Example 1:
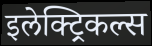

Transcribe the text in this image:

इलेक्ट्रिकल्स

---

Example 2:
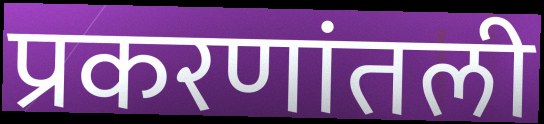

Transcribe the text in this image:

प्रकरणांतली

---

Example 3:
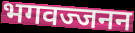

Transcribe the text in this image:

भगवज्जनन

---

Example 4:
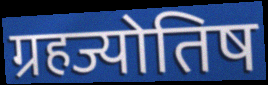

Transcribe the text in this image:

ग्रहज्योतिष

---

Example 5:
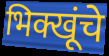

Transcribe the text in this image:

भिक्खूंचे